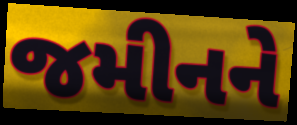
જમીનને